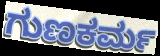
ಗುಣಕರ್ಮ